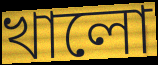
খালো